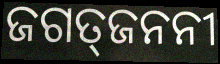
ଜଗତ୍‍ଜନନୀ